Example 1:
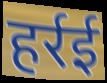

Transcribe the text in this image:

हर्रई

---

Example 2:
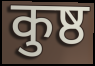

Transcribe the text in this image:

कुष्ठ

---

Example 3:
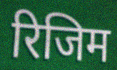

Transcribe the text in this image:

रिजिम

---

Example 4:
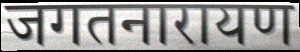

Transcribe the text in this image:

जगतनारायण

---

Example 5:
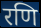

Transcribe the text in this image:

रणि